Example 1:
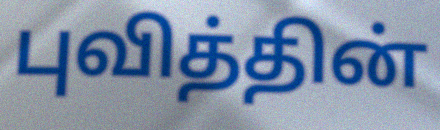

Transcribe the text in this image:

புவித்தின்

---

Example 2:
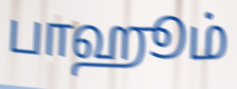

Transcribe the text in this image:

பாஹூம்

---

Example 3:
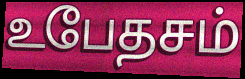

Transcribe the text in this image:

உபேதசம்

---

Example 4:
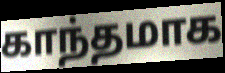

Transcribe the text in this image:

காந்தமாக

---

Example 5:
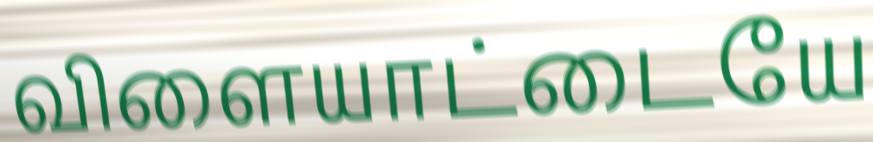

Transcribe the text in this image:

விளையாட்டையே